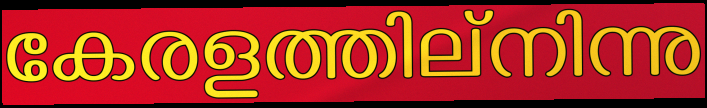
കേരളത്തില്നിന്നു